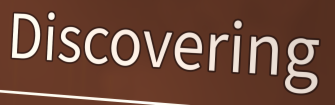
Discovering